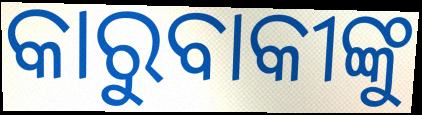
କାରୁବାକୀଙ୍କୁ